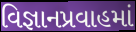
વિજ્ઞાનપ્રવાહમાં